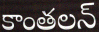
కాంతలన్